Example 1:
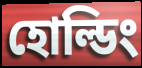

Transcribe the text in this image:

হোল্ডিং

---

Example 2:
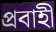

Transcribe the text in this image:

প্রবাহী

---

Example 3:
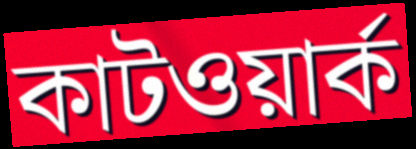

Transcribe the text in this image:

কাটওয়ার্ক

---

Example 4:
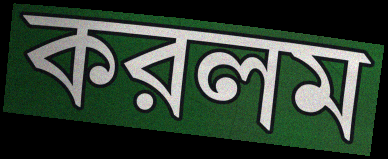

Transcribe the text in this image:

করলম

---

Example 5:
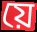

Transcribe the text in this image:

য়ে